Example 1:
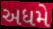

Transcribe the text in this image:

અધમે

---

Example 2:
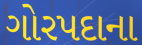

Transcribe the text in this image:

ગોરપદાના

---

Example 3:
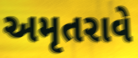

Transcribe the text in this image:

અમૃતરાવે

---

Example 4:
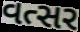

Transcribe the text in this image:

વત્સર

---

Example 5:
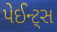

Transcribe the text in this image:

પેઈન્ટ્સ